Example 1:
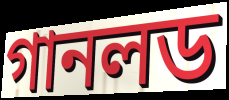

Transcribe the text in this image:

গানলড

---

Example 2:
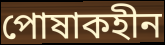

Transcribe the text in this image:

পোষাকহীন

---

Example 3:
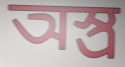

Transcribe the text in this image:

অস্ত্র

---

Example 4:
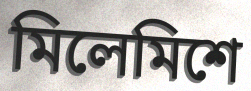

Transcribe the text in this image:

মিলেমিশে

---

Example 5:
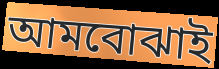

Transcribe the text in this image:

আমবোঝাই